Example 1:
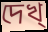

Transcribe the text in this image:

দেখ্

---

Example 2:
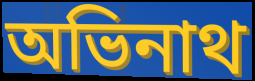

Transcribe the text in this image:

অভিনাথ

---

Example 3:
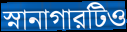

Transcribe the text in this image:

স্নানাগারটিও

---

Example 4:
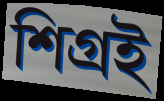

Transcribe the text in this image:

শিগ্রই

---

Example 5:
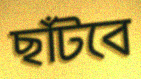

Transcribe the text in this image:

ছাঁটবে